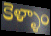
కెళ్ళాం